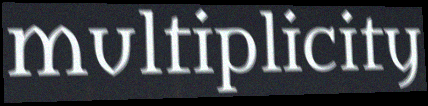
multiplicity